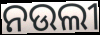
ନଉଲୀ